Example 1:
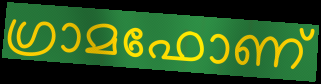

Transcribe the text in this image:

ഗ്രാമഫോണ്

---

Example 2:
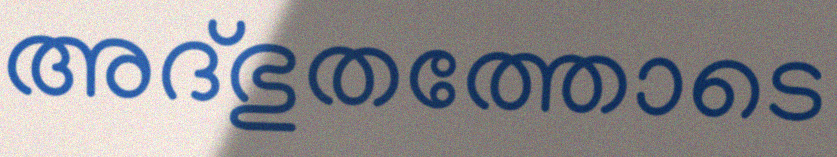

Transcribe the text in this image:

അദ്ഭുതത്തോടെ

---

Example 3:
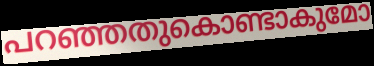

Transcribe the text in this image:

പറഞ്ഞതുകൊണ്ടാകുമോ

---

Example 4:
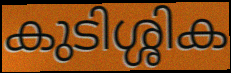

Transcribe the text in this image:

കുടിശ്ശിക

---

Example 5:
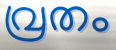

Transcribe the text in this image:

വ്രതം